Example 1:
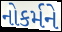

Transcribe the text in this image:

નોકર્મને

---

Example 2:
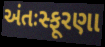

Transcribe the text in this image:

અંતઃસ્ફૂરણા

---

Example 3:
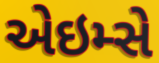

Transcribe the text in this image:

એઇમ્સે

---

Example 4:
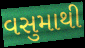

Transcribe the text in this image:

વસુમાથી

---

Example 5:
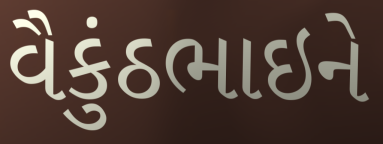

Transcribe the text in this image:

વૈકુંઠભાઇને